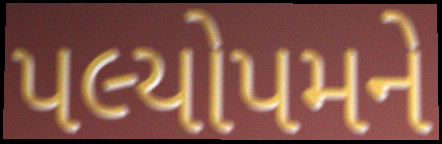
પલ્યોપમને